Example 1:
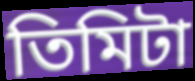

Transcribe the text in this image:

তিমিটা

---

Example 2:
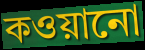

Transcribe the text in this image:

কওয়ানো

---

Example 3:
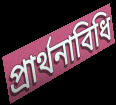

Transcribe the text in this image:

প্রার্থনাবিধি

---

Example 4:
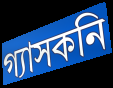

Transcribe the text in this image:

গ্যাসকনি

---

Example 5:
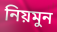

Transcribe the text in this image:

নিয়মুন